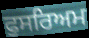
ਫੁਸਰਿਅਮ